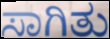
ಸಾಗಿತು